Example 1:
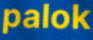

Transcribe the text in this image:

palok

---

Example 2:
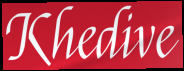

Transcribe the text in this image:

Khedive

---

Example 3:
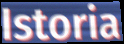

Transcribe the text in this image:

Istoria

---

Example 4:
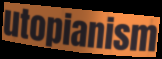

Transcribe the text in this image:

utopianism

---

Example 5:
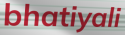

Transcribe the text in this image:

bhatiyali